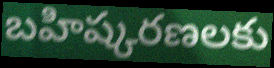
బహిష్కరణలకు